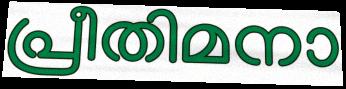
പ്രീതിമനാ